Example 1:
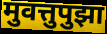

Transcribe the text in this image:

मुवत्तुपुझा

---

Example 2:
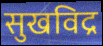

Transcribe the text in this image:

सुखविद्र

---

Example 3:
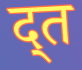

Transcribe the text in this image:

द्त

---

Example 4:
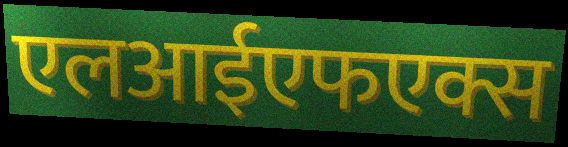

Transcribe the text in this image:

एलआईएफएक्स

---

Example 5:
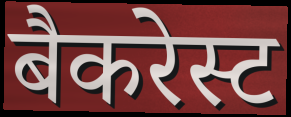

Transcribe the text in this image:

बैकरेस्ट